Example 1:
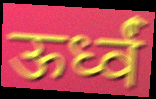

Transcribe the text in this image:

ऊर्ध्व॑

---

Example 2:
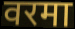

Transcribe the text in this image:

वरमा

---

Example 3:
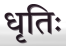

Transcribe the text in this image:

धृतिः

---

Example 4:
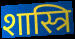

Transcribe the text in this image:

शास्त्रि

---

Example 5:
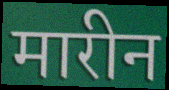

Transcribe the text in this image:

मारीन